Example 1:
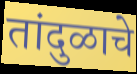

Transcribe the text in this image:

तांदुळाचे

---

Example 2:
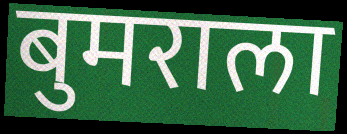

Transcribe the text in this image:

बुमराला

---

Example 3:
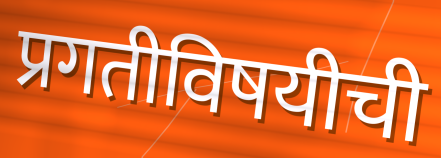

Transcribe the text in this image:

प्रगतीविषयीची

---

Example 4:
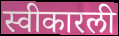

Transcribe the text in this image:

स्वीकारली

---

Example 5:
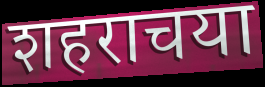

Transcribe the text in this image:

शहराचया